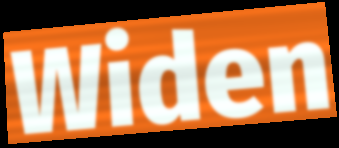
Widen